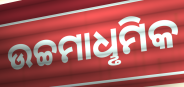
ଉଚ୍ଚମାଧୢମିକ